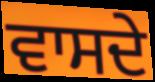
ਵਾਸਦੇ